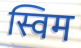
स्विम